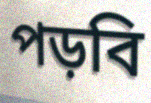
পড়বি